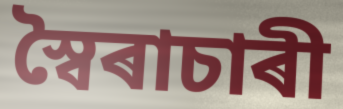
স্বৈৰাচাৰী